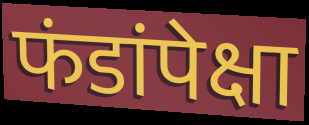
फंडांपेक्षा